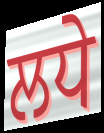
ਲਧੇ